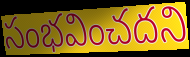
సంభవించదని